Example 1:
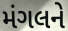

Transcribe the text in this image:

મંગલને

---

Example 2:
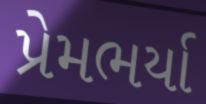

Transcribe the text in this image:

પ્રેમભર્યા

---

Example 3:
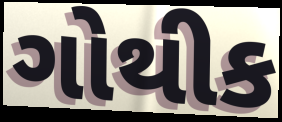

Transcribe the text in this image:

ગોથીક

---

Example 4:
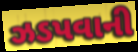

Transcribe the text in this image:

ઝડપવાની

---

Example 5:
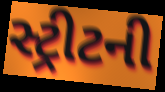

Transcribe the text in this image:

સ્ટ્રીટની